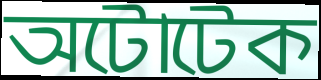
অটোটেক